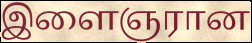
இளைஞரான